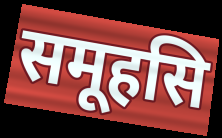
समूहसि